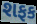
શફક